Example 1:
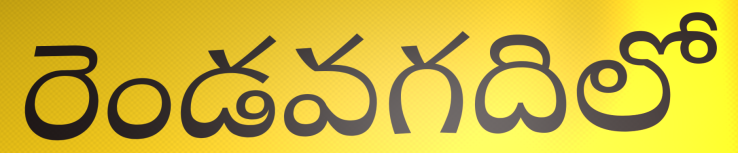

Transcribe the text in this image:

రెండవగదిలో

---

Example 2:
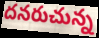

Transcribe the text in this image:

దనరుచున్న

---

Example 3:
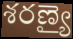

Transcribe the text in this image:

శరణ్యై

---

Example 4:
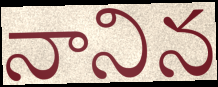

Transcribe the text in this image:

నానిన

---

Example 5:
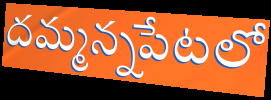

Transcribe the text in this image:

దమ్మన్నపేటలో